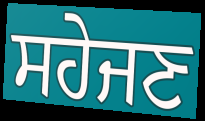
ਸਹੇਜਣ